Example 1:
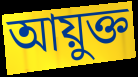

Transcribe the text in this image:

আয়ুক্ত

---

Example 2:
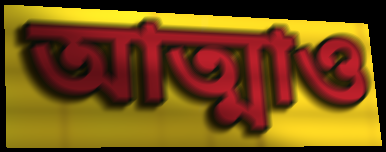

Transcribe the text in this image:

আত্মাও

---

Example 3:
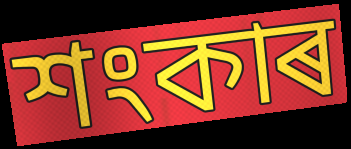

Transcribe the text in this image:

শংকাৰ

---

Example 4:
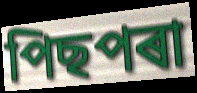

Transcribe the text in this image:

পিছপৰা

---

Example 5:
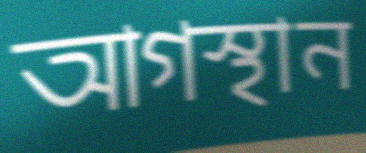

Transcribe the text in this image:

আগস্থান